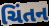
ચિંતન